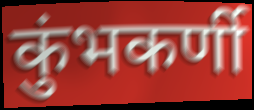
कुंभकर्णी